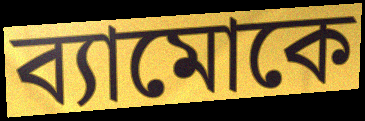
ব্যামোকে